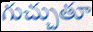
గుచ్చుతూ